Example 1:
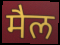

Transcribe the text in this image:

मैल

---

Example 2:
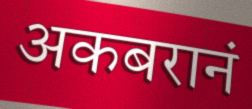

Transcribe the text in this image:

अकबरानं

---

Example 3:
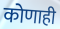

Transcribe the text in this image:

कोणाही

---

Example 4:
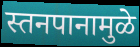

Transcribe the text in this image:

स्तनपानामुळे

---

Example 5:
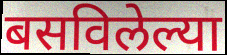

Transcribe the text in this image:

बसविलेल्या